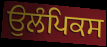
ਉਲੰਪਿਕਸ